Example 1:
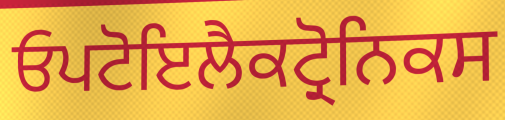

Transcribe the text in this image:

ਓਪਟੋਇਲੈਕਟ੍ਰੋਨਿਕਸ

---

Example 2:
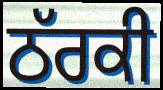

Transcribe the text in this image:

ਠੱਰਕੀ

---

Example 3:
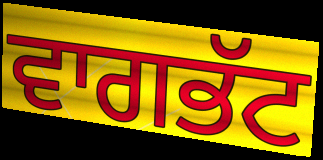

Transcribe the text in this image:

ਵਾਗਭੱਟ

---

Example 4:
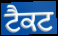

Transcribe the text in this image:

ਟੈਕਟ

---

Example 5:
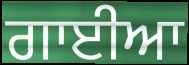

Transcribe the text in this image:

ਗਾਈਆ